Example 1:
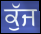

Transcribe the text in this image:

ਕੁੱਜ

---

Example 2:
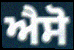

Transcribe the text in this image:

ਐਸੋ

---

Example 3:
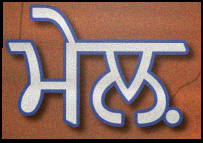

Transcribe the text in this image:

ਮੇਲ਼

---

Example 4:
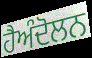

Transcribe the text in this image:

ਹੈਅੰਦੋਲਨ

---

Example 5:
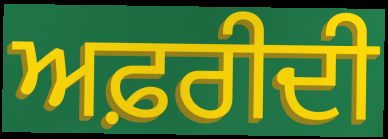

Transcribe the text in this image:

ਅਫ਼ਰੀਦੀ